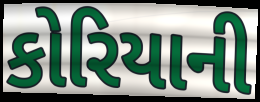
કોરિયાની